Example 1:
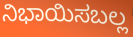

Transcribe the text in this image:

ನಿಭಾಯಿಸಬಲ್ಲ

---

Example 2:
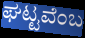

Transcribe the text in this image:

ಘಟ್ಟವೆಂಬ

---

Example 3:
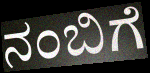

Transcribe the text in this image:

ನಂಬಿಗೆ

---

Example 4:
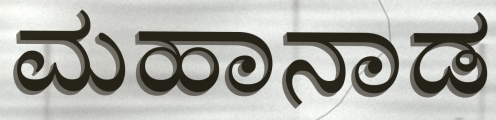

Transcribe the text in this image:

ಮಹಾನಾಡ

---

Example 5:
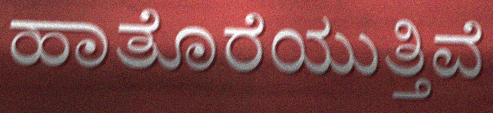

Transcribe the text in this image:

ಹಾತೊರೆಯುತ್ತಿವೆ